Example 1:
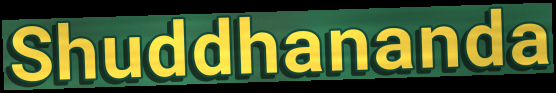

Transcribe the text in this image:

Shuddhananda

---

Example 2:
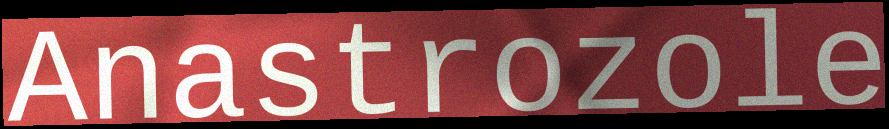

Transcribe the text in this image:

Anastrozole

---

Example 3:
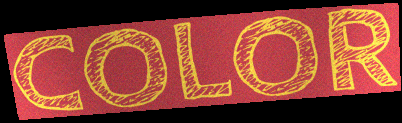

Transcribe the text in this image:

COLOR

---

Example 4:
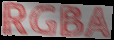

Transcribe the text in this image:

RGBA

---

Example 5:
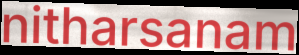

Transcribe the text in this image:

nitharsanam